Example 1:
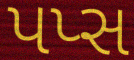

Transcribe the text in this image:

પપ્સ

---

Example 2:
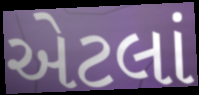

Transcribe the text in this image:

એટલાં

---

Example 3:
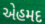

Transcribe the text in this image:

એહમદ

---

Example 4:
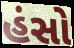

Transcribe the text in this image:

હંસો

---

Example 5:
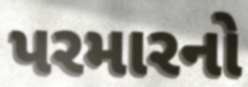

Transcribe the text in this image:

પરમારનો